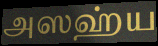
அஸஹ்ய